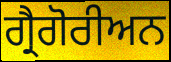
ਗ੍ਰੈਗੋਰੀਅਨ